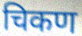
चिकण